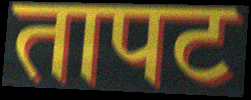
तापट